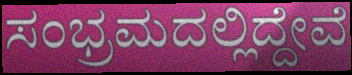
ಸಂಭ್ರಮದಲ್ಲಿದ್ದೇವೆ